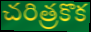
చరిత్రకొక